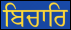
ਬਿਚਾਰਿ